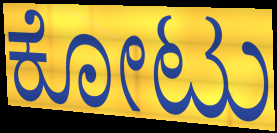
ಕೋಟು